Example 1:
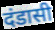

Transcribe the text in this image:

दंडासी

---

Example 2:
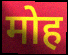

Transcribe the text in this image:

मोह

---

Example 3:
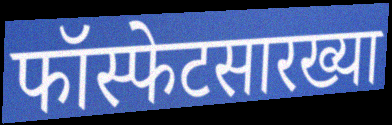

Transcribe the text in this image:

फॉस्फेटसारख्या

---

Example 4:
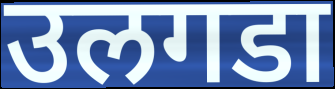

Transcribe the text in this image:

उलगडा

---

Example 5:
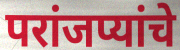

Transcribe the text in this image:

परांजप्यांचे